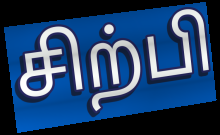
சிற்பி